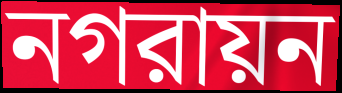
নগরায়ন